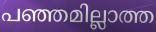
പഞ്ഞമില്ലാത്ത